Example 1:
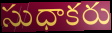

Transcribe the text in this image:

సుధాకరు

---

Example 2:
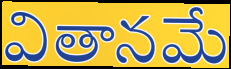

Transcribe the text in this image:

వితానమే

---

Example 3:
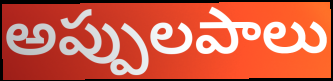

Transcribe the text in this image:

అప్పులపాలు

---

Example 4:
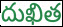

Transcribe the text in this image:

దుఖిత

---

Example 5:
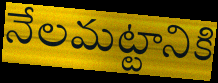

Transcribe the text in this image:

నేలమట్టానికి